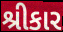
શ્રીકાર